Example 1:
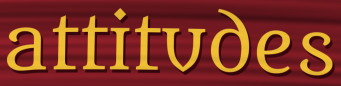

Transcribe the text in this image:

attitudes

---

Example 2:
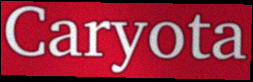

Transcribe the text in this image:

Caryota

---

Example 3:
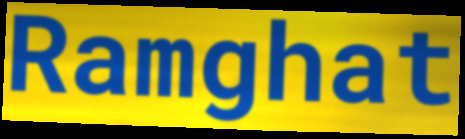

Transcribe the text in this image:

Ramghat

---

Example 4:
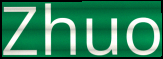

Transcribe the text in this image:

Zhuo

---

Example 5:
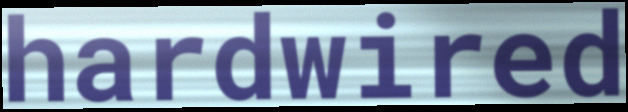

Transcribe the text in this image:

hardwired